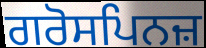
ਗਰੋਸਪਿਨਜ਼